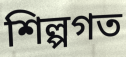
শিল্পগত